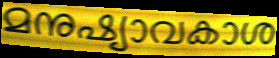
മനുഷ്യാവകാശ